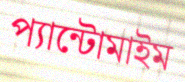
প্যান্টোমাইম